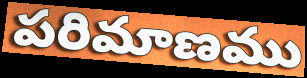
పరిమాణము